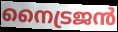
നൈട്രജൻ